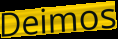
Deimos